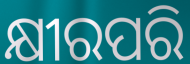
କ୍ଷୀରପରି